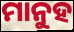
ମାନୁହ